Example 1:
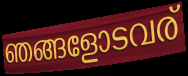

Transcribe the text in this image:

ഞങ്ങളോടവര്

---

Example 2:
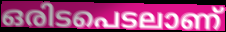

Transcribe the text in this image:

ഒരിടപെടലാണ്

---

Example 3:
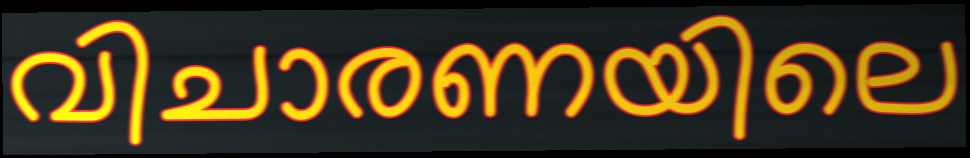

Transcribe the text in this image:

വിചാരണയിലെ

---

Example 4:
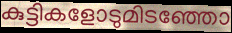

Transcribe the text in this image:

കുട്ടികളോടുമിടഞ്ഞോ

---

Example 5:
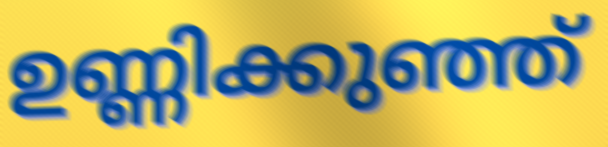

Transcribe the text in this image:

ഉണ്ണിക്കുഞ്ഞ്